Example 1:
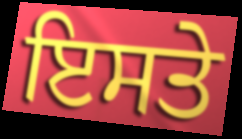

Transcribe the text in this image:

ਇਸਤੇ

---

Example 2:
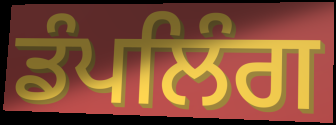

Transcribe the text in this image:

ਡੰਪਲਿੰਗ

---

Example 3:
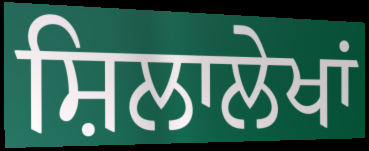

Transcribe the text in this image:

ਸ਼ਿਲਾਲੇਖਾਂ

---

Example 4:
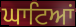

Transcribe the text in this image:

ਘਾਟਿਆਂ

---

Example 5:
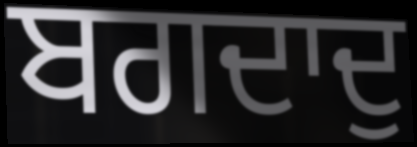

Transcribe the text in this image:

ਬਗਦਾਦੁ